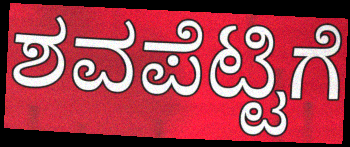
ಶವಪೆಟ್ಟಿಗೆ